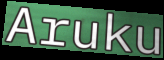
Aruku